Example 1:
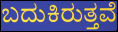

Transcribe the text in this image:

ಬದುಕಿರುತ್ತವೆ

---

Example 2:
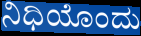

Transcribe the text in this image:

ನಿಧಿಯೊಂದು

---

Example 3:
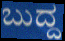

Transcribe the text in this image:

ಬುದ್ದ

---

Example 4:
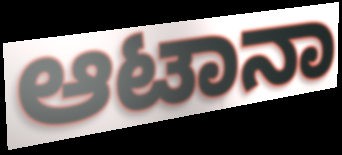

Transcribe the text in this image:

ಆಟಾನಾ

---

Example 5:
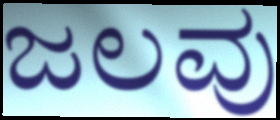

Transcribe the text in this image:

ಜಲವು